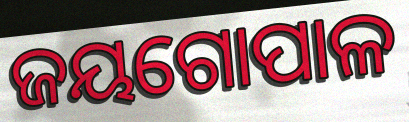
ଜୟଗୋପାଳ